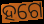
ହଗେ